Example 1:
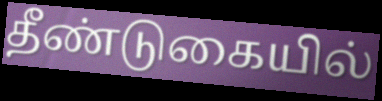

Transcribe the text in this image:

தீண்டுகையில்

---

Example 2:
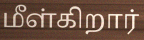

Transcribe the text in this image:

மீள்கிறார்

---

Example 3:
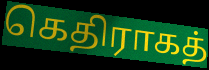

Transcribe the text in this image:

கெதிராகத்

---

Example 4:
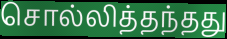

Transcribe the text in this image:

சொல்லித்தந்தது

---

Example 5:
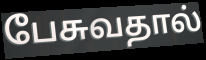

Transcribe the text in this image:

பேசுவதால்